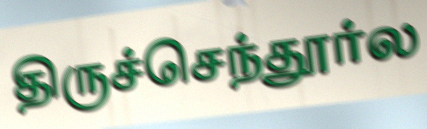
திருச்செந்தூர்ல